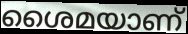
ശൈമയാണ്